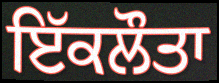
ਇੱਕਲੌਤਾ